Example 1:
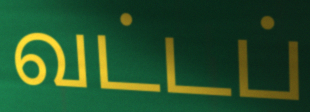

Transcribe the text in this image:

வட்டப்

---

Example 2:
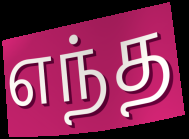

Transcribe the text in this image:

எந்த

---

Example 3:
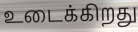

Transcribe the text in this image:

உடைக்கிறது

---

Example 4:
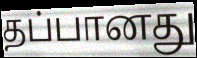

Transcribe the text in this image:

தப்பானது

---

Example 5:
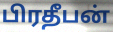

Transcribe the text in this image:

பிரதீபன்